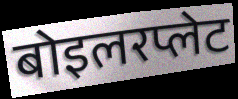
बोइलरप्लेट